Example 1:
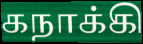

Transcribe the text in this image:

கநாக்கி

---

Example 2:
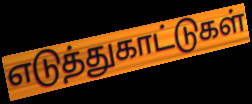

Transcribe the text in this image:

எடுத்துகாட்டுகள்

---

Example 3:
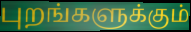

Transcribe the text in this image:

புறங்களுக்கும்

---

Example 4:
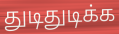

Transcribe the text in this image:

துடிதுடிக்க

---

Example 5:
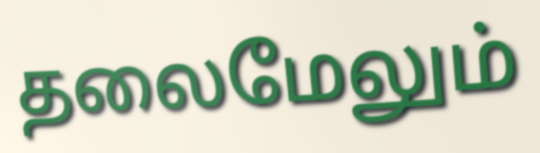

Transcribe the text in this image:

தலைமேலும்